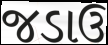
જડાઉ